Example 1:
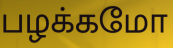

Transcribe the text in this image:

பழக்கமோ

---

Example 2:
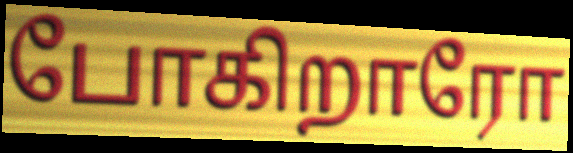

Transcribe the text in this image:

போகிறாரோ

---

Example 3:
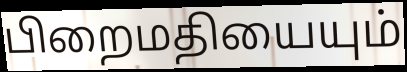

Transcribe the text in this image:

பிறைமதியையும்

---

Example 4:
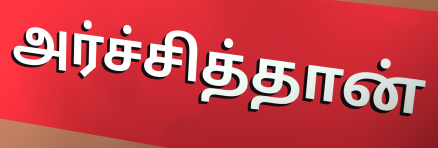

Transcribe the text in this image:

அர்ச்சித்தான்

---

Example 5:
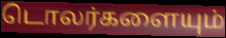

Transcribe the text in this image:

டொலர்களையும்